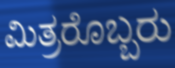
ಮಿತ್ರರೊಬ್ಬರು